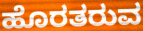
ಹೊರತರುವ